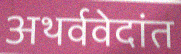
अथर्ववेदांत